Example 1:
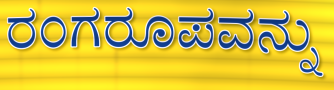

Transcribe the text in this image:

ರಂಗರೂಪವನ್ನು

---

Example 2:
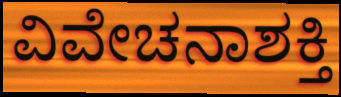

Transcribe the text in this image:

ವಿವೇಚನಾಶಕ್ತಿ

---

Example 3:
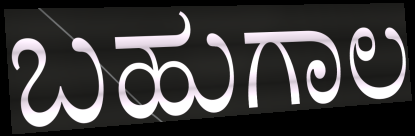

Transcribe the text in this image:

ಬಹುಗಾಲ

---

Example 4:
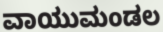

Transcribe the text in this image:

ವಾಯುಮಂಡಲ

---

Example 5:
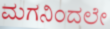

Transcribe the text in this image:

ಮಗನಿಂದಲೇ